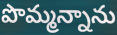
పొమ్మన్నాను